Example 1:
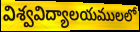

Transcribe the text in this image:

విశ్వవిద్యాలయములలో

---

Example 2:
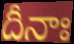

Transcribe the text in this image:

దీనాః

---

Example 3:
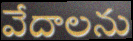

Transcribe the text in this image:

వేదాలను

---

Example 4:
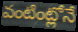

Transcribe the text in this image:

వంటింట్లోనే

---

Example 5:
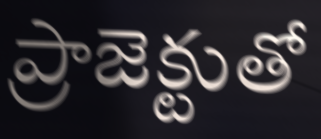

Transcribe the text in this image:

ప్రాజెక్టుతో